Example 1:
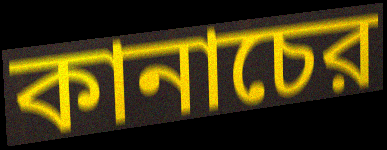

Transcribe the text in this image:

কানাচের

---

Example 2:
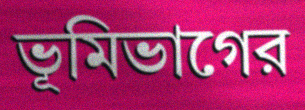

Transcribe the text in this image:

ভূমিভাগের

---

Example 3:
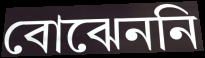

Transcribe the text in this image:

বোঝেননি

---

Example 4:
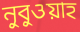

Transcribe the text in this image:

নুবুওয়াহ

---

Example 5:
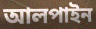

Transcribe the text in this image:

আলপাইন